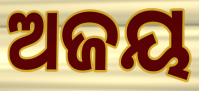
ଅଜୟ